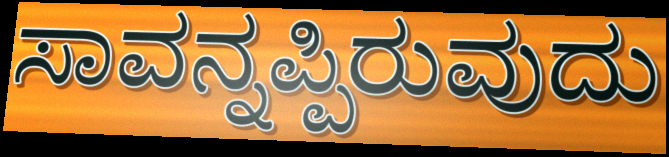
ಸಾವನ್ನಪ್ಪಿರುವುದು